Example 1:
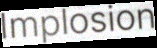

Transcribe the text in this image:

Implosion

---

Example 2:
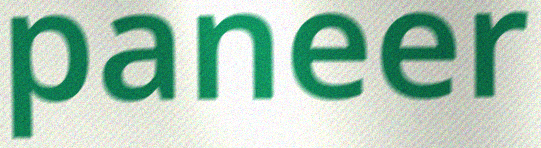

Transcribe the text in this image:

paneer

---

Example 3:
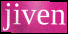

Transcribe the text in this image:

jiven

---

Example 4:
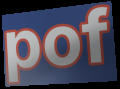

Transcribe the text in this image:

pof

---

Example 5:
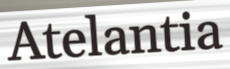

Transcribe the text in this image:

Atelantia